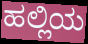
ಹಲ್ಲಿಯ